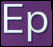
Ep